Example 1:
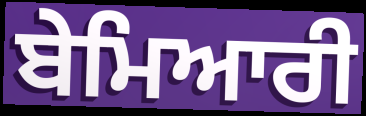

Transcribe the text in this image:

ਬੇਮਿਆਰੀ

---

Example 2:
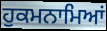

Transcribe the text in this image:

ਹੁਕਮਨਾਮਿਆਂ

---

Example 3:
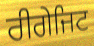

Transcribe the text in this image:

ਰੀਗੇਜਿਟ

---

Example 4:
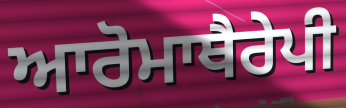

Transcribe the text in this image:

ਆਰੋਮਾਥੈਰੇਪੀ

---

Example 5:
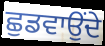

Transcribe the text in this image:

ਛੁਡਵਾਉਂਦੇ